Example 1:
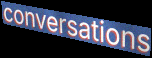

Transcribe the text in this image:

conversations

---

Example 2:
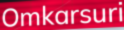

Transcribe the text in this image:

Omkarsuri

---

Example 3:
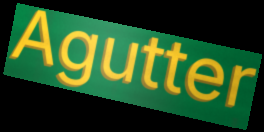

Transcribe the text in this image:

Agutter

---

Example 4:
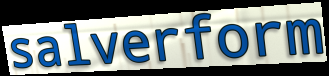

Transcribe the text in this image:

salverform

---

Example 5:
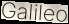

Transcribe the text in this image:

Galileo